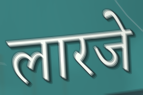
लारजे